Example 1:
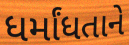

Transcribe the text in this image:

ધર્માંધતાને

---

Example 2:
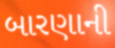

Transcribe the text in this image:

બારણાની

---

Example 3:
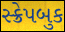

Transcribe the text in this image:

સ્ક્રેપબુક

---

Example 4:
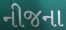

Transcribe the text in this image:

નીજના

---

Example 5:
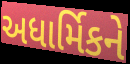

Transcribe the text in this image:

અધાર્મિકને